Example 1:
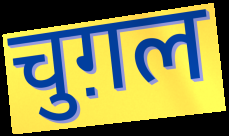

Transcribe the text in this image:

चुग़ल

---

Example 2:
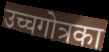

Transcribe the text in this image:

उच्चगोत्रका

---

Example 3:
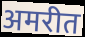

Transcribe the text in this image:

अमरीत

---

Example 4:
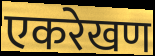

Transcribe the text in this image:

एकरेखण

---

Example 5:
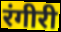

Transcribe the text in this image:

रंगीरी